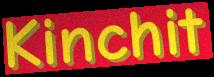
Kinchit